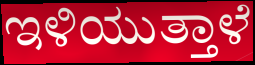
ಇಳಿಯುತ್ತಾಳೆ